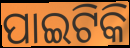
ପାଇଟିକି